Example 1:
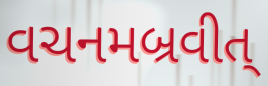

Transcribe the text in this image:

વચનમબ્રવીત્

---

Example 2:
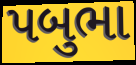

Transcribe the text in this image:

પબુભા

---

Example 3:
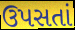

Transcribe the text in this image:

ઉપસતાં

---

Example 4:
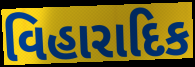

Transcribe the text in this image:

વિહારાદિક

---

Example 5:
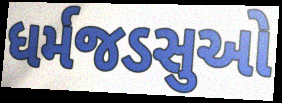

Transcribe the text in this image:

ધર્મજડસુઓ